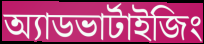
অ্যাডভার্টাইজিং